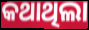
କଥାଥିଲା